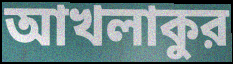
আখলাকুর